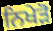
ਨਿਖੇੜੋ